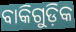
ବାକିଗୁଡ଼ିକ